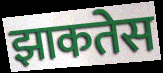
झाकतेस